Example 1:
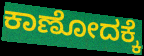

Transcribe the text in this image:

ಕಾಣೋದಕ್ಕೆ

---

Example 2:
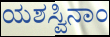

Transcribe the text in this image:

ಯಶಸ್ವಿನಾಂ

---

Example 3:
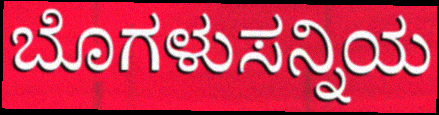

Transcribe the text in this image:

ಬೊಗಳುಸನ್ನಿಯ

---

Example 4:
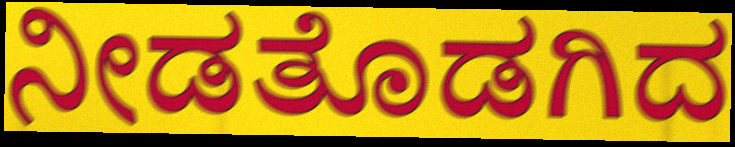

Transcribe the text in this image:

ನೀಡತೊಡಗಿದ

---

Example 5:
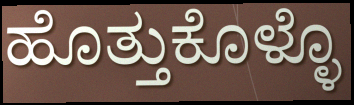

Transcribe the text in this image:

ಹೊತ್ತುಕೊಳ್ಳೊ